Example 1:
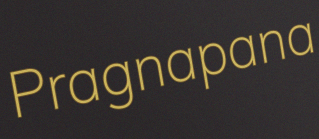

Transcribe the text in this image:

Pragnapana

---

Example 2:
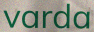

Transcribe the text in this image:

varda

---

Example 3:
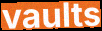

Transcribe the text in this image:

vaults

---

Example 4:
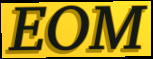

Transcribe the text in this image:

EOM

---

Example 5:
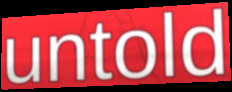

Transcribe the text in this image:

untold